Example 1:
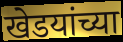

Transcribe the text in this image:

खेडयांच्या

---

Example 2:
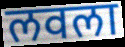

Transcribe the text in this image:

लवला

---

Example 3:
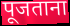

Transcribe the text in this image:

पूजताना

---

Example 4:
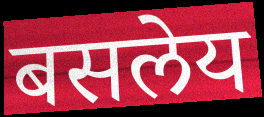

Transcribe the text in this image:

बसलेय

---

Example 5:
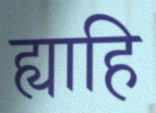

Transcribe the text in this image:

ह्याहि